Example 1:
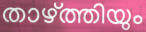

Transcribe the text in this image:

താഴ്ത്തിയും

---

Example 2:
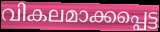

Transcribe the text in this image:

വികലമാക്കപ്പെട്ട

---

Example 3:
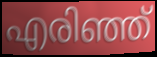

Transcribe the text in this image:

എരിഞ്ഞ്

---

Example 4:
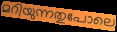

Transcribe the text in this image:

മറിയുന്നതുപോലെ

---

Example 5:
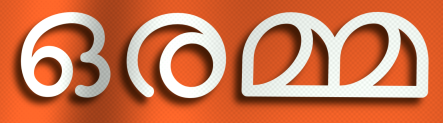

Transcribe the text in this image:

ഒരമ്മ